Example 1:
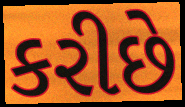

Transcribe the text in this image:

કરીછે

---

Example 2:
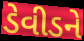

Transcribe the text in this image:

ડેવીડને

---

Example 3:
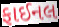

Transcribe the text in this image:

ફાઈનલ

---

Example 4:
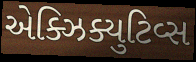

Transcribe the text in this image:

એક્ઝિક્યુટિવ્સ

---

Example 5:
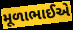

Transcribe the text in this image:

મૂળાભાઈએ